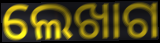
ଲେଖାଗ